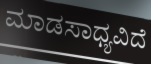
ಮಾಡಸಾಧ್ಯವಿದೆ